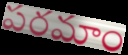
పరమాం